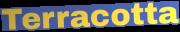
Terracotta